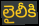
లైలీకి